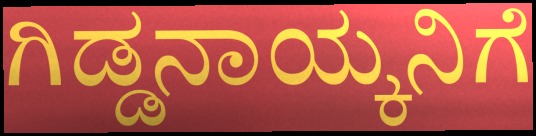
ಗಿಡ್ಡನಾಯ್ಕನಿಗೆ